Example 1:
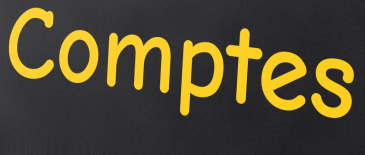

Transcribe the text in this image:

Comptes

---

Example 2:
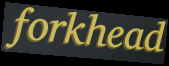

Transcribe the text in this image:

forkhead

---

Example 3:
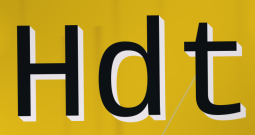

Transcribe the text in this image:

Hdt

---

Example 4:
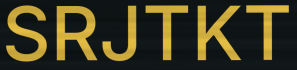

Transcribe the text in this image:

SRJTKT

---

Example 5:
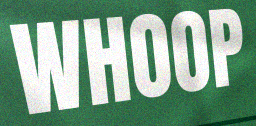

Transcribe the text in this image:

WHOOP